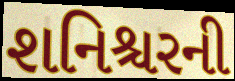
શનિશ્ચરની